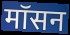
मॉसन